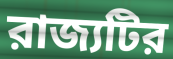
রাজ্যটির